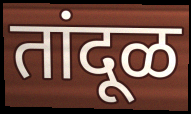
तांदूळ